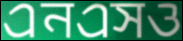
এনএসও